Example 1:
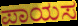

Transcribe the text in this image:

ಪಾಯಸ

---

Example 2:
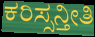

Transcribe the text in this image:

ಕರಿಸ್ಸನ್ತೀತಿ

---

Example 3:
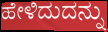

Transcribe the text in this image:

ಹೇಳಿದುದನ್ನು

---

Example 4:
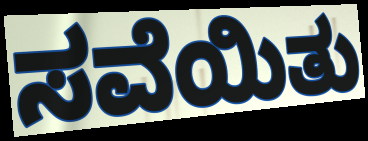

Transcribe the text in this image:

ಸವೆಯಿತು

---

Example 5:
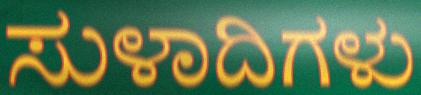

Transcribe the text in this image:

ಸುಳಾದಿಗಳು